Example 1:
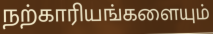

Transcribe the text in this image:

நற்காரியங்களையும்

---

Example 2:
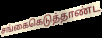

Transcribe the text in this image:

சங்கைகெடுத்தாண்ட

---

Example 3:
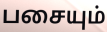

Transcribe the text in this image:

பசையும்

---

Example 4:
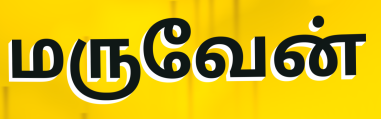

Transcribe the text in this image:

மருவேன்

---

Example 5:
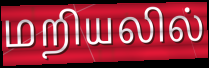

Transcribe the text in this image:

மறியலில்